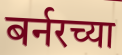
बर्नरच्या